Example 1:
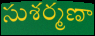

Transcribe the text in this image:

సుశర్మణా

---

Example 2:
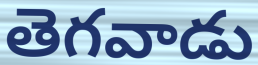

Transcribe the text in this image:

తెగవాడు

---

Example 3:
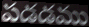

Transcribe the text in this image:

పడడము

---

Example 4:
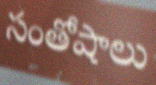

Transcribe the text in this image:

సంతోషాలు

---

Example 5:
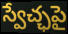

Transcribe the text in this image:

స్వేచ్ఛపై